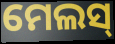
ମେଲସ୍